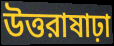
উত্তরাষাঢ়া